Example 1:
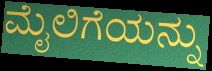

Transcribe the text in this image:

ಮೈಲಿಗೆಯನ್ನು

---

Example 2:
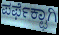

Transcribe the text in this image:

ಪರ್ಫೆಕ್ಟಾಗಿ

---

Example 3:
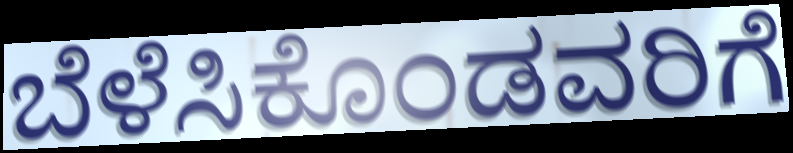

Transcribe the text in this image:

ಬೆಳೆಸಿಕೊಂಡವರಿಗೆ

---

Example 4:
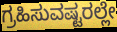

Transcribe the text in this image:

ಗ್ರಹಿಸುವಷ್ಟರಲ್ಲೇ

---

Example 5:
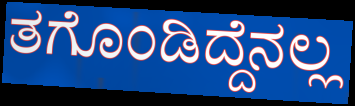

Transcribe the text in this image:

ತಗೊಂಡಿದ್ದೆನಲ್ಲ